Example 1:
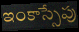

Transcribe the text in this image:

ఇంకాస్సేపు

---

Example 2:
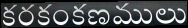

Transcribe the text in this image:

కరకంకణములు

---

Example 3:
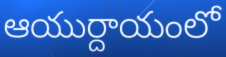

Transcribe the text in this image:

ఆయుర్దాయంలో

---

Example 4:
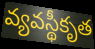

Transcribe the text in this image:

వ్యవస్థీకృత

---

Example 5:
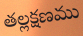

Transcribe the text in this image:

తల్లక్షణము